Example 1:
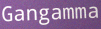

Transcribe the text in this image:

Gangamma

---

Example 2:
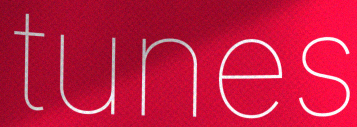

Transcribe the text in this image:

tunes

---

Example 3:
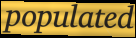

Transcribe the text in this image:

populated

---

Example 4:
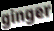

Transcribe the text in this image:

ginger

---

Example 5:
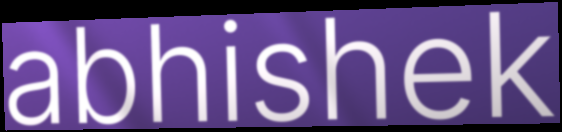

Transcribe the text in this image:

abhishek